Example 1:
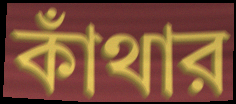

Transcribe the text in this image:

কাঁথার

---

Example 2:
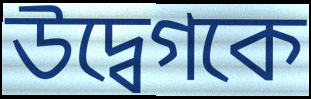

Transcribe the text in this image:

উদ্বেগকে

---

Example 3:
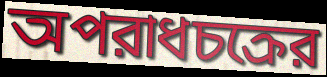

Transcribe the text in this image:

অপরাধচক্রের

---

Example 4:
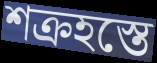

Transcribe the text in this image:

শক্রহস্তে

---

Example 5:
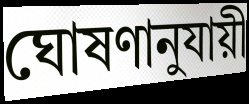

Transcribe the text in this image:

ঘোষণানুযায়ী